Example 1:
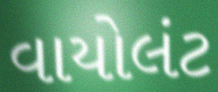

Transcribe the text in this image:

વાયોલંટ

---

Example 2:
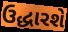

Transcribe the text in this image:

ઉદ્ધારશે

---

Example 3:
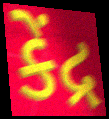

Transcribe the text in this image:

કેંદ્ર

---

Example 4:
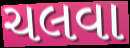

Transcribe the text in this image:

ચલવા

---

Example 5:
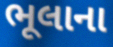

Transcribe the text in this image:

ભૂલાના